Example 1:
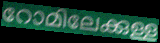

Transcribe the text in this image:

റോമിലേക്കുള്ള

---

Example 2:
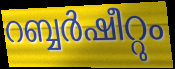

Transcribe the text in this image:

റബ്ബർഷീറ്റും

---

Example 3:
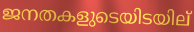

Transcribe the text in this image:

ജനതകളുടെയിടയില്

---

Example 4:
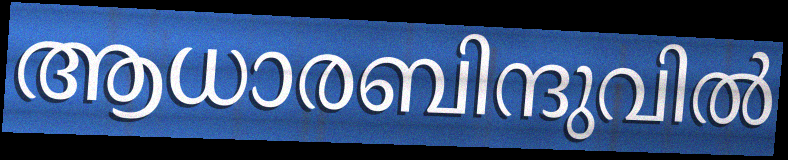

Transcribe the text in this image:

ആധാരബിന്ദുവിൽ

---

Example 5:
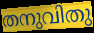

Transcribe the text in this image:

തനുവിതു